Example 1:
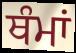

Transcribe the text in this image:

ਥੰਮਾਂ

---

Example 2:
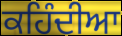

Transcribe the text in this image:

ਕਹਿੰਦੀਆ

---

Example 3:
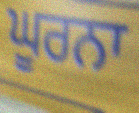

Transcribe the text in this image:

ਘੂਰਨਾ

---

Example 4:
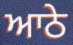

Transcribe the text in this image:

ਆਠੇ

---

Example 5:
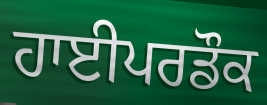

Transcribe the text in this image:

ਹਾਈਪਰਡੌਕ